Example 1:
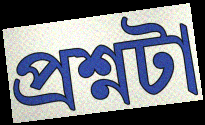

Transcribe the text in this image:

প্রশ্নটা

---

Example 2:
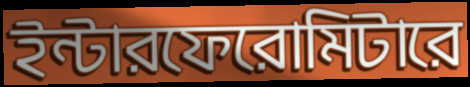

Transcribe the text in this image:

ইন্টারফেরোমিটারে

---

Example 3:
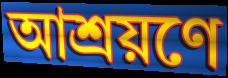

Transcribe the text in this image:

আশ্রয়ণে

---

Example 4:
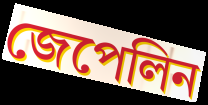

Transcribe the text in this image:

জেপেলিন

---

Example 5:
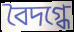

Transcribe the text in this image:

বৈদগ্ধে